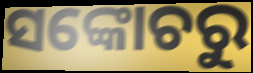
ସଙ୍କୋଚରୁ